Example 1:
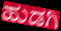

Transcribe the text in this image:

ಹುಡಗಿ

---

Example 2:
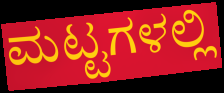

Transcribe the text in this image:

ಮಟ್ಟಗಳಲ್ಲಿ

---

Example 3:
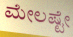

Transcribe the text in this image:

ಮೇಲಷ್ಟೇ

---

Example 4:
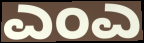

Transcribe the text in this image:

ಎಂಎ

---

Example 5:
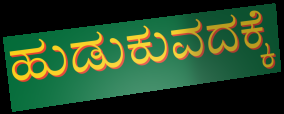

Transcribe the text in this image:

ಹುಡುಕುವದಕ್ಕೆ